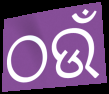
ଠଉଁ